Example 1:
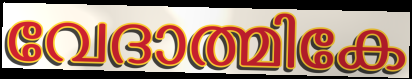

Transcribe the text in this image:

വേദാത്മികേ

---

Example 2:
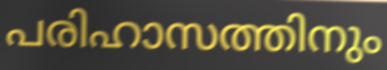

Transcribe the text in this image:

പരിഹാസത്തിനും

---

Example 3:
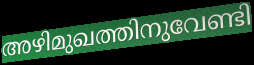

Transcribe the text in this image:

അഴിമുഖത്തിനുവേണ്ടി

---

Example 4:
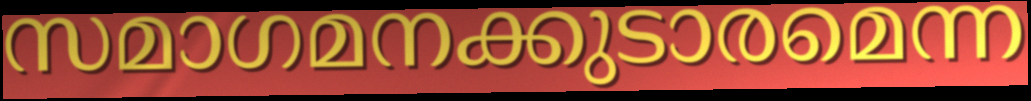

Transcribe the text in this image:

സമാഗമനക്കുടാരമെന്ന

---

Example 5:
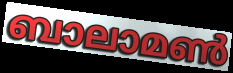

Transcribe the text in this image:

ബാലാമൺ